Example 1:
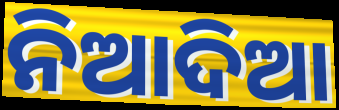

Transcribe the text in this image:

ନିଆଦିଆ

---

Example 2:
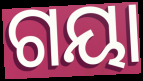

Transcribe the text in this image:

ଗୟା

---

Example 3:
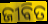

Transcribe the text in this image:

ଜୀବିତ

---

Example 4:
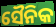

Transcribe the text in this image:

ସୈନିକ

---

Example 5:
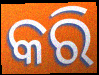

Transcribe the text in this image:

କରି